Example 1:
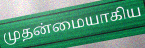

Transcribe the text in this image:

முதன்மையாகிய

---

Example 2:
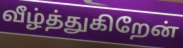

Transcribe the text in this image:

வீழ்த்துகிறேன்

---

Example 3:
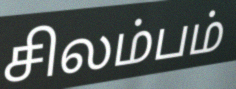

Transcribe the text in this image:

சிலம்பம்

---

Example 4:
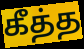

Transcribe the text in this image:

கீத்த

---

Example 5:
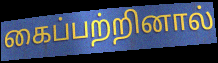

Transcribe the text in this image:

கைப்பற்றினால்